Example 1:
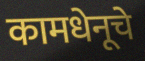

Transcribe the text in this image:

कामधेनूचे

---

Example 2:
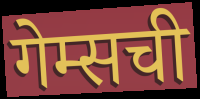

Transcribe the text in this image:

गेम्सची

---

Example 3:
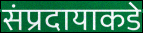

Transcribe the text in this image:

संप्रदायाकडे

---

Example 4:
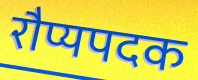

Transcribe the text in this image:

रौप्यपदक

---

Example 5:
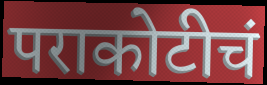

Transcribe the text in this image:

पराकोटीचं